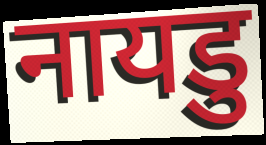
नायडु